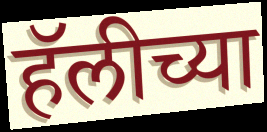
हॅलीच्या